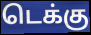
டெக்கு